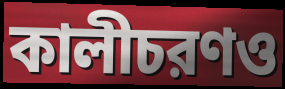
কালীচরণও